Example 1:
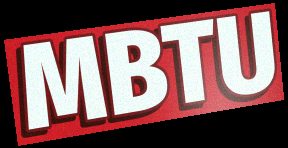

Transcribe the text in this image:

MBTU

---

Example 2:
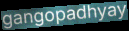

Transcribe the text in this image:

gangopadhyay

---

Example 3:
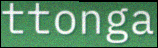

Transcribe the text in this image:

ttonga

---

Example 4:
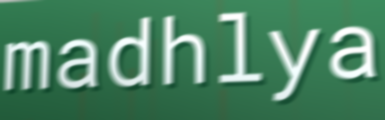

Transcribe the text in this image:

madhlya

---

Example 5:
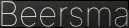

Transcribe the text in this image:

Beersma